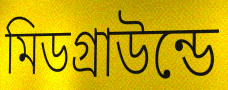
মিডগ্রাউন্ডে